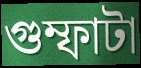
গুম্ফাটা